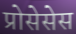
प्रोसेसेस